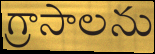
గ్రాసాలను